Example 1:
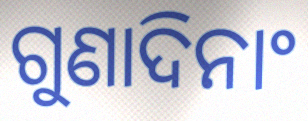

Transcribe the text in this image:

ଗୁଣାଦିନାଂ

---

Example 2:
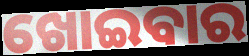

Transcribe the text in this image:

ଖୋଇବାର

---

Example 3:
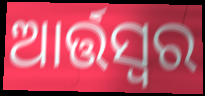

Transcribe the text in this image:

ଆର୍ତ୍ତସ୍ୱର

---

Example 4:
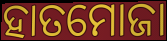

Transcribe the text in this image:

ହାତମୋଜା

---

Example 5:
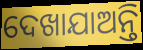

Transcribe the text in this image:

ଦେଖାଯାଅନ୍ତି